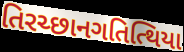
તિરચ્છાનગતિત્થિયા